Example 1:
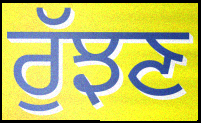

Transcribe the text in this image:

ਰੁੱਝਣ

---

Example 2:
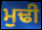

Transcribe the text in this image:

ਮੁਢੀ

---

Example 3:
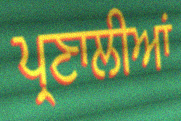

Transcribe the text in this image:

ਪ੍ਰਣਾਲੀਆਂ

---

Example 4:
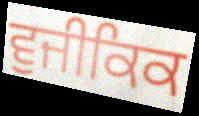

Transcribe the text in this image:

ਵੁਜੀਕਿਕ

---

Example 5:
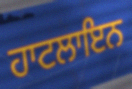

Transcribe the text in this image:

ਹਾਟਲਾਇਨ